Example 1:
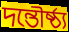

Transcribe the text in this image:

দন্তৌষ্ঠ্য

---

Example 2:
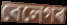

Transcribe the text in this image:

বেলেগৰ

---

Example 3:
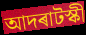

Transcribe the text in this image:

আদৰাটস্কী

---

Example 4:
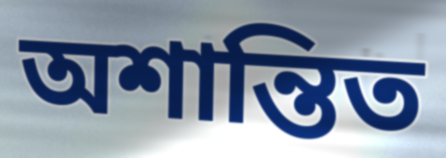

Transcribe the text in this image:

অশান্তিত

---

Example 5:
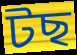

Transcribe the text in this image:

টছ